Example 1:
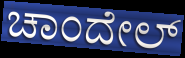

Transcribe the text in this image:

ಚಾಂದೇಲ್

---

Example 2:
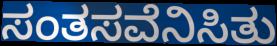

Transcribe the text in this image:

ಸಂತಸವೆನಿಸಿತು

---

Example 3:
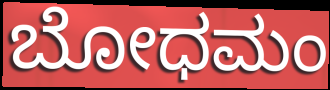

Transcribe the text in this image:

ಬೋಧಮಂ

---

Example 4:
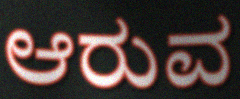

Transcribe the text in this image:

ಆರುವ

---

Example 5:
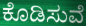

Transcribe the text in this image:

ಕೊಡಿಸುವೆ